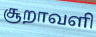
சூறாவளி